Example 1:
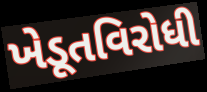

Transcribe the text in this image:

ખેડૂતવિરોધી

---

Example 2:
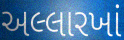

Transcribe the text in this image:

અલ્લારખાં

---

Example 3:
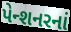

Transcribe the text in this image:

પેન્શનરનાં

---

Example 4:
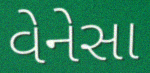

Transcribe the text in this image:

વેનેસા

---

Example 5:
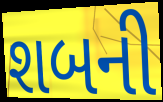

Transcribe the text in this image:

શબની